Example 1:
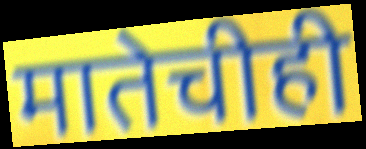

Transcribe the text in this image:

मातेचीही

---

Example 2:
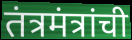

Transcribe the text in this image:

तंत्रमंत्रांची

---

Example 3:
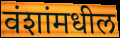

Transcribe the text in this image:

वंशांमधील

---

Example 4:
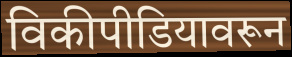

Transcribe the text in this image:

विकीपीडियावरून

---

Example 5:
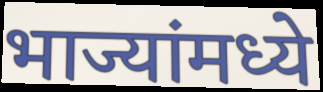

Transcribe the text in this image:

भाज्यांमध्ये